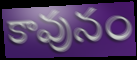
కావునం